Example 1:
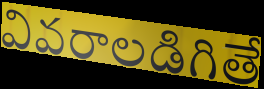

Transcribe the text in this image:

వివరాలడిగితే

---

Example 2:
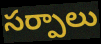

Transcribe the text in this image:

సర్పాలు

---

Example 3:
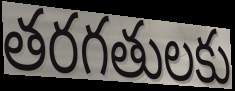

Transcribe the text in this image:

తరగతులకు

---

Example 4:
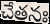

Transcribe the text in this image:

చేతనః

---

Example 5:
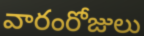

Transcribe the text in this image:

వారంరోజులు